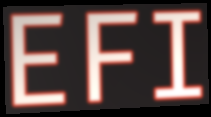
EFI